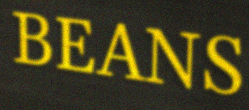
BEANS